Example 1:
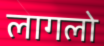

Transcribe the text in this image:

लागलो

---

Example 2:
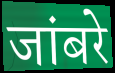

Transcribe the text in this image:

जांबरे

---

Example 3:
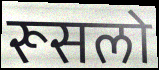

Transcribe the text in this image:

रूसलो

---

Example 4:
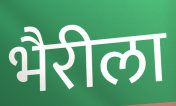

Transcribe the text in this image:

भैरीला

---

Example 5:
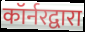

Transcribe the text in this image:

कॉर्नरद्वारा